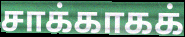
சாக்காகக்